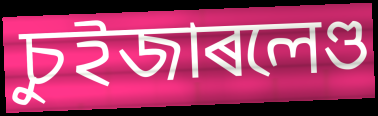
চুইজাৰলেণ্ড